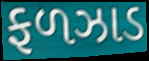
ફળઝાડ